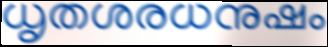
ധൃതശരധനുഷം